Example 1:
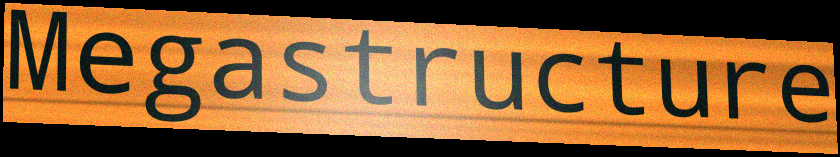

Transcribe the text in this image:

Megastructure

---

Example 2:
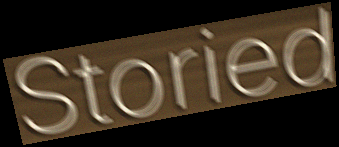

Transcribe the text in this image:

Storied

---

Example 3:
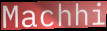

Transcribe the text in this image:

Machhi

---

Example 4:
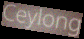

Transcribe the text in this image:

Ceylong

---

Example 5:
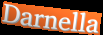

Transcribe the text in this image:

Darnella